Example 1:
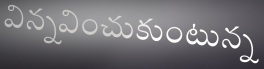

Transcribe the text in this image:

విన్నవించుకుంటున్న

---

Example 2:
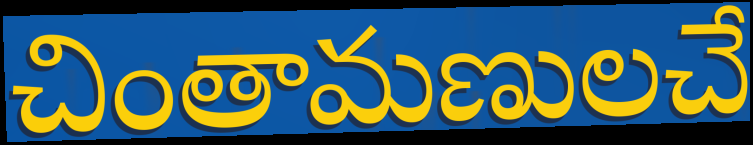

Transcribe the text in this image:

చింతామణులచే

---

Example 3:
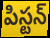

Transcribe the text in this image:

పిస్టన్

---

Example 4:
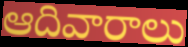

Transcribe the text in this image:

ఆదివారాలు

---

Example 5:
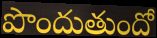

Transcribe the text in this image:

పొందుతుందో